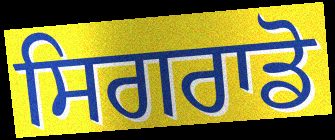
ਸਿਗਰਾਡੋ